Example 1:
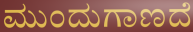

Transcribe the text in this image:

ಮುಂದುಗಾಣದೆ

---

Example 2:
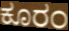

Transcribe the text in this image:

ಕೂರಂ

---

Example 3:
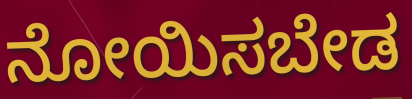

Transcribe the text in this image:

ನೋಯಿಸಬೇಡ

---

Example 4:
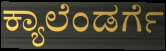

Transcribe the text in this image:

ಕ್ಯಾಲೆಂಡರ್ಗೆ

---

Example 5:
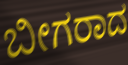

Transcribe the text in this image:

ಬೀಗರಾದ